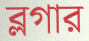
ব্লগার